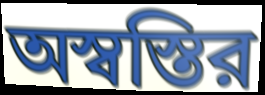
অস্বস্তির